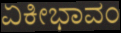
ಏಕೀಭಾವಂ